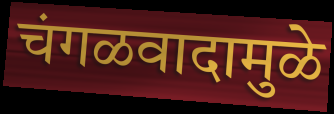
चंगळवादामुळे